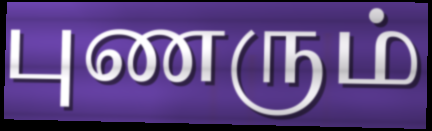
புணரும்